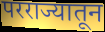
परराज्यातून